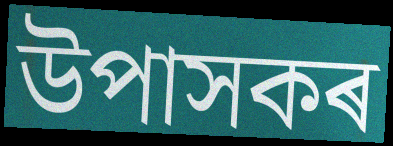
উপাসকৰ